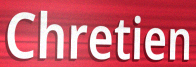
Chretien